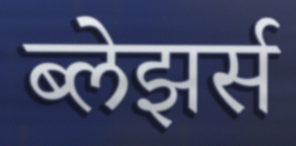
ब्लेझर्स